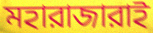
মহারাজারাই